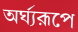
অর্ঘ্যরূপে